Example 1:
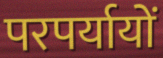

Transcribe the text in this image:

परपर्यायों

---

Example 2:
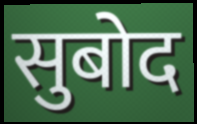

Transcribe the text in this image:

सुबोद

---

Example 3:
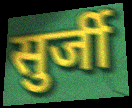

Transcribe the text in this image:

सुर्जी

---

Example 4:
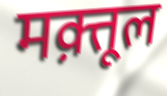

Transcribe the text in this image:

मक़्तूल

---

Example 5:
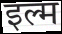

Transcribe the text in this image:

इल्म